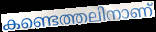
കണ്ടെത്തലിനാണ്